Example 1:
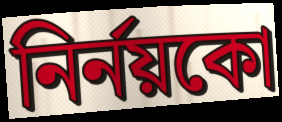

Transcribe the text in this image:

নিৰ্নয়কো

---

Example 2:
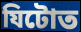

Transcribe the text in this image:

যিটোত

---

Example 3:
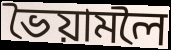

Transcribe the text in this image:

ভৈয়ামলৈ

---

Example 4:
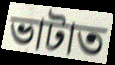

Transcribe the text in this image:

ভাটাত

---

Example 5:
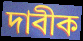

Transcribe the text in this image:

দাবীক